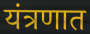
यंत्रणात